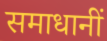
समाधानीं